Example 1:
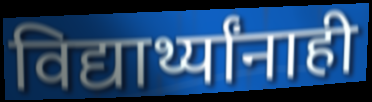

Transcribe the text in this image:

विद्यार्थ्यांनाही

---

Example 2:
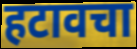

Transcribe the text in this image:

हटावचा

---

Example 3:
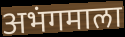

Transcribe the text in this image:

अभंगमाला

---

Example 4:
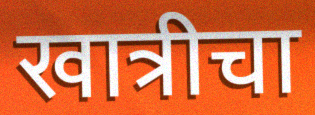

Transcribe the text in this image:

खात्रीचा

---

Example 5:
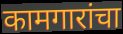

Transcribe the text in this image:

कामगारांचा